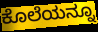
ಕೊಲೆಯನ್ನೂ